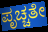
ಪೃಚ್ಚತೇ